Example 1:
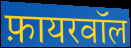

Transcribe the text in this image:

फ़ायरवॉल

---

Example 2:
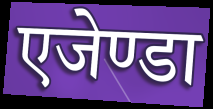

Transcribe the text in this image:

एजेण्डा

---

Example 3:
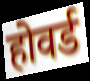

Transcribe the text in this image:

होवर्ड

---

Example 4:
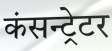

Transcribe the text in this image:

कंसन्ट्रेटर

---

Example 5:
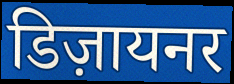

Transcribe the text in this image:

डिज़ायनर